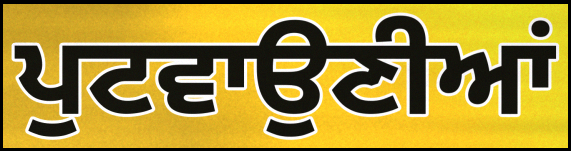
ਪੁਟਵਾਉਣੀਆਂ